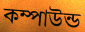
কম্পাউন্ড